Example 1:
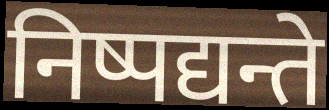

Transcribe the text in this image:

निष्पद्यन्ते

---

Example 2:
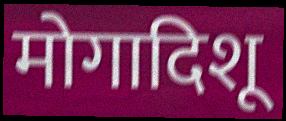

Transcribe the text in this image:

मोगादिशू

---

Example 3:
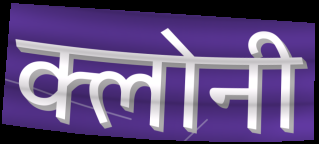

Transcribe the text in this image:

क्लोनी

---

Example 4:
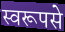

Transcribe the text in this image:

स्वरूपसे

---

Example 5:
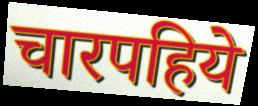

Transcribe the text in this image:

चारपहिये